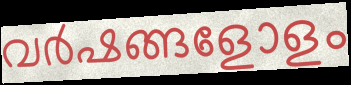
വർഷങ്ങളോളം